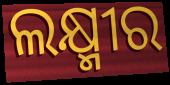
ଲକ୍ଷ୍ମୀର